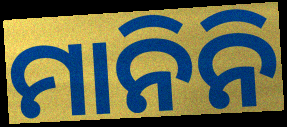
ମାନିନି